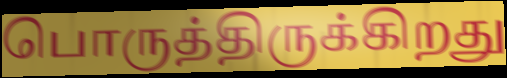
பொருத்திருக்கிறது